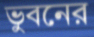
ভুবনের